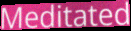
Meditated